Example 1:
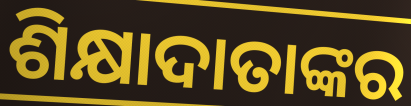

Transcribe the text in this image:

ଶିକ୍ଷାଦାତାଙ୍କର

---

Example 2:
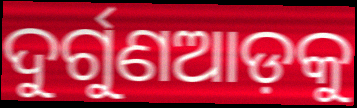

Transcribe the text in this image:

ଦୁର୍ଗୁଣଆଡ଼କୁ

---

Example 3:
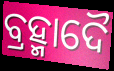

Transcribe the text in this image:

ବ୍ରହ୍ମାଦୈ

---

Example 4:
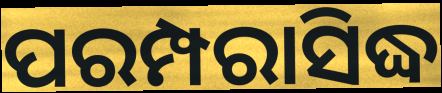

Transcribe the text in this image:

ପରମ୍ପରାସିଦ୍ଧ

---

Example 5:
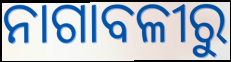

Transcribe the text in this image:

ନାଗାବଳୀରୁ